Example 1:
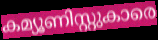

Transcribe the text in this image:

കമ്യൂണിസ്റ്റുകാരെ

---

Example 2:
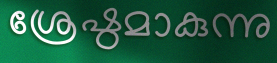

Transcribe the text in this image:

ശ്രേഷ്ഠമാകുന്നു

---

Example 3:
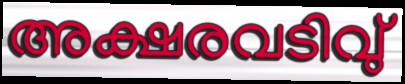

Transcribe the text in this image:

അക്ഷരവടിവു്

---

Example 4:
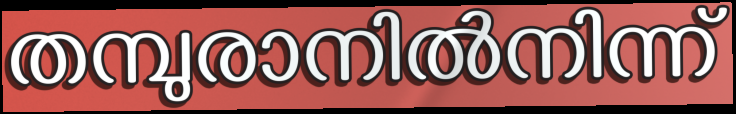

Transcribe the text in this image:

തമ്പുരാനിൽനിന്ന്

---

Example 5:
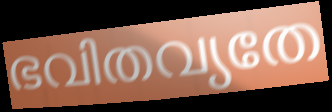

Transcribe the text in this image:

ഭവിതവ്യതേ